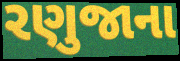
રણુજાના